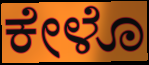
ಕೇಳೊ